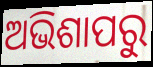
ଅଭିଶାପରୁ